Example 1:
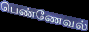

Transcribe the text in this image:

பெண்ணேவல்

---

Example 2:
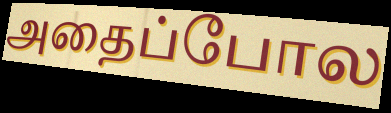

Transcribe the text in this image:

அதைப்போல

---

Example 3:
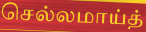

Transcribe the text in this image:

செல்லமாய்த்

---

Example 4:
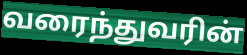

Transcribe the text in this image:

வரைந்துவரின்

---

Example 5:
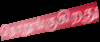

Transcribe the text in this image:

நொறுங்குகிறது